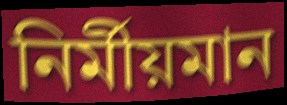
নির্মীয়মান